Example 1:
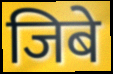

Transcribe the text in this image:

जिबे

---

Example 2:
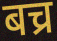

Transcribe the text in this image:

बच्र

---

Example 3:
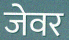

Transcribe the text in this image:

जेवर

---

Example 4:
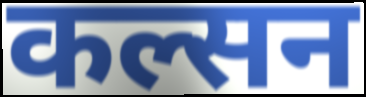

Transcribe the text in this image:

कल्सन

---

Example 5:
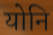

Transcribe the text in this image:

योनि